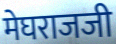
मेघराजजी